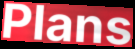
Plans